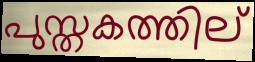
പുസ്തകത്തില്